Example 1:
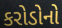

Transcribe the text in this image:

કરોડોનો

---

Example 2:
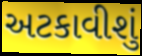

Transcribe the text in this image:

અટકાવીશું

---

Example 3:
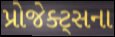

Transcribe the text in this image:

પ્રોજેક્ટ્સના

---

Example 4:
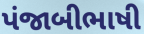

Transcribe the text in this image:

પંજાબીભાષી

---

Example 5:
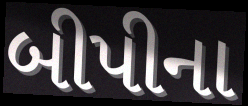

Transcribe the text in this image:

બીપીના